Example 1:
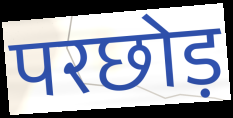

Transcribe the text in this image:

परछोड़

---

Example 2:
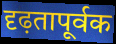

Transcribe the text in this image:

दृढ़तापूर्वक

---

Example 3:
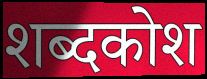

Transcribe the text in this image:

शब्दकोश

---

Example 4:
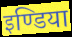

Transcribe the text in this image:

इण्डिया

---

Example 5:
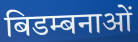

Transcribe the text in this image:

बिडम्बनाओं